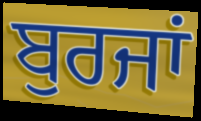
ਬੁਰਜਾਂ